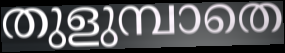
തുളുമ്പാതെ